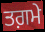
ਤਗ਼ਮੇ